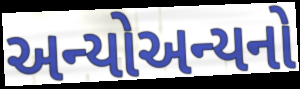
અન્યોઅન્યનો